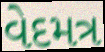
વેદમત્ર